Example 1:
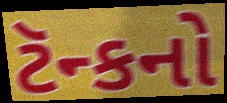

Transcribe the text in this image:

ટૅન્કનો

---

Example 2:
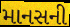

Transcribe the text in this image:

માનસની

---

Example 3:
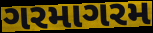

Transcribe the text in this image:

ગરમાગરમ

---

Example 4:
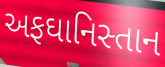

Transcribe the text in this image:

અફઘાનિસ્તાન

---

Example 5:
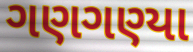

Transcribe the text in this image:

ગણગણ્યા